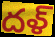
దళ్